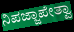
ನಿಪಜ್ಜಾಪೇತ್ವಾ